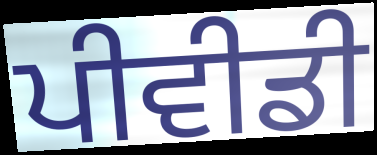
ਪੀਵੀਡੀ